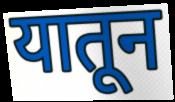
यातून